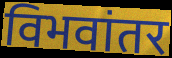
विभवांतर